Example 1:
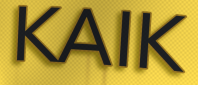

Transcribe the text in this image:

KAIK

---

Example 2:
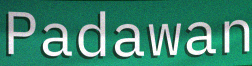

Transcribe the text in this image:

Padawan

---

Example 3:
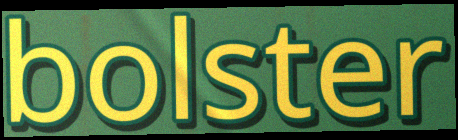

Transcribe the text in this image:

bolster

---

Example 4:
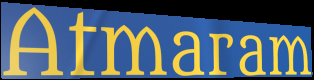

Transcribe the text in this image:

Atmaram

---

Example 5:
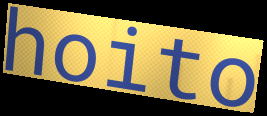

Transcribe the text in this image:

hoito